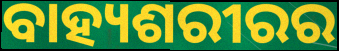
ବାହ୍ୟଶରୀରର